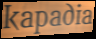
kapadia